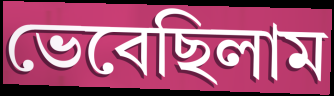
ভেবেছিলাম